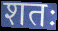
शतः